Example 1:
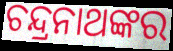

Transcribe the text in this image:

ଚନ୍ଦ୍ରନାଥଙ୍କର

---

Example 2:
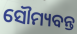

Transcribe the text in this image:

ସୌମ୍ୟବନ୍ତ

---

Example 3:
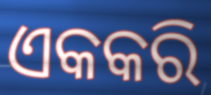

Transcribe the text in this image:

ଏକକରି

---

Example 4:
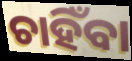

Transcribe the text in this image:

ଚାହିଁବା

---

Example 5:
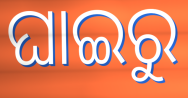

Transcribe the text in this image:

ଘାଇରୁ